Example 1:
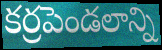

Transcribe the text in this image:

కర్రపెండలాన్ని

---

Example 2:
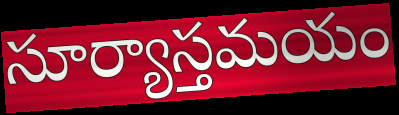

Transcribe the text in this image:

సూర్యాస్తమయం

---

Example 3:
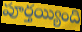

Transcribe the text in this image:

పూర్తయ్యింది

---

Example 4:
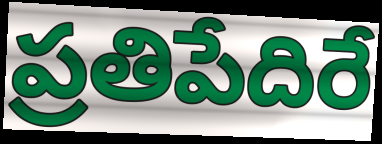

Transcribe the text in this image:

ప్రతిపేదిరే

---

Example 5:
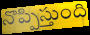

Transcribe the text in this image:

నొప్పిస్తుంది